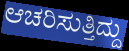
ಆಚರಿಸುತ್ತಿದ್ದು